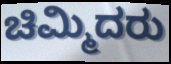
ಚಿಮ್ಮಿದರು